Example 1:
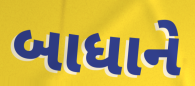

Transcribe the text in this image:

બાધાને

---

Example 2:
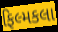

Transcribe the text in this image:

ફિલ્મકલા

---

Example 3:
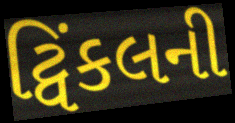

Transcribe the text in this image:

ટ્વિંકલની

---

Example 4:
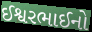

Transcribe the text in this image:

ઈશ્વરભાઈનો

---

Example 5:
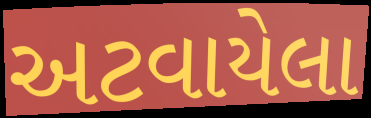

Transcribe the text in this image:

અટવાયેલા